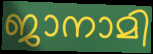
ജാനാമി